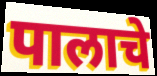
पालाचे